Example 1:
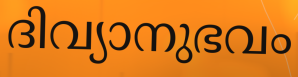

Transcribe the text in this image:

ദിവ്യാനുഭവം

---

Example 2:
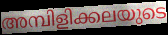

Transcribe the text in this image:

അമ്പിളിക്കലയുടെ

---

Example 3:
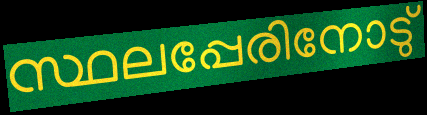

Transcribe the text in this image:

സ്ഥലപ്പേരിനോടു്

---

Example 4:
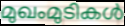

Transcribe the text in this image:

മുഖംമുടികൾ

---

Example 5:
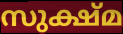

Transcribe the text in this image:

സുക്ഷ്മ